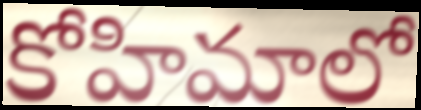
కోహిమాలో